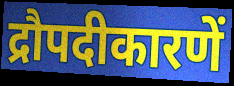
द्रौपदीकारणें